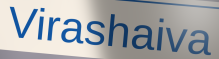
Virashaiva